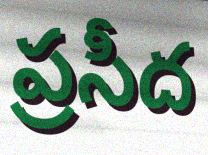
ప్రసీద